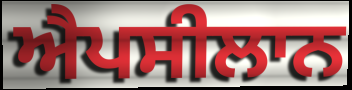
ਐਪਸੀਲਾਨ